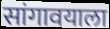
सांगावयाला